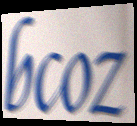
bcoz